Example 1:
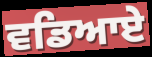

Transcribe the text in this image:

ਵਡਿਆਏ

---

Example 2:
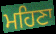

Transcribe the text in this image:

ਮਹਿਣਾ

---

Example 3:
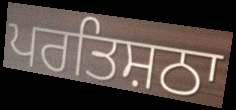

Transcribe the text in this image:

ਪਰਤਿਸ਼ਠਾ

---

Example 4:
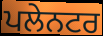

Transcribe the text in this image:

ਪਲੇਨਟਰ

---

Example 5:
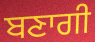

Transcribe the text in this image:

ਬਣਾਗੀ